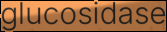
glucosidase